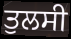
ਤੁਲਸੀ